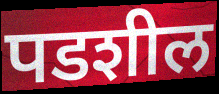
पडशील